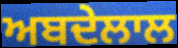
ਅਬਦੇਲਾਲ